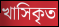
খাসিকৃত